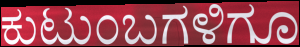
ಕುಟುಂಬಗಳಿಗೂ